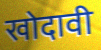
खोदावी